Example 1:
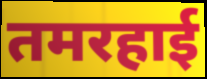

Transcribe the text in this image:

तमरहाई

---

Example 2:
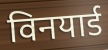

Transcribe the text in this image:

विनयार्ड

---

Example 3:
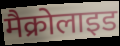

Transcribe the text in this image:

मैक्रोलाइड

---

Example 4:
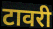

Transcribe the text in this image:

टावरी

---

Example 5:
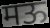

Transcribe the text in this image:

मऊ